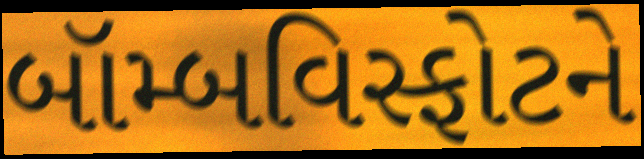
બૉમ્બવિસ્ફોટને